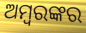
ଅମ୍ବରଙ୍କର